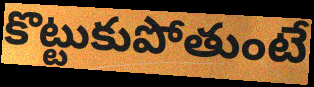
కొట్టుకుపోతుంటే